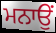
ਮਨਾਉਂ